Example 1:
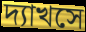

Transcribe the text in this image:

দ্যাখসে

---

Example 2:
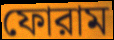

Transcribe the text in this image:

ফোরাম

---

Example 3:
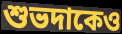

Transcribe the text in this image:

শুভদাকেও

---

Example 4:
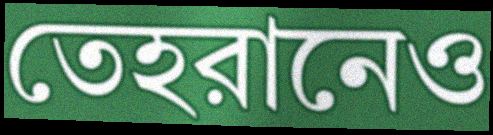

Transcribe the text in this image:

তেহরানেও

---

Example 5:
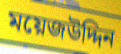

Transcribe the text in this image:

ময়েজউদ্দিন